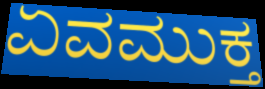
ಏವಮುಕ್ತ